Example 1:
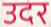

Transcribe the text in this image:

उदर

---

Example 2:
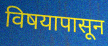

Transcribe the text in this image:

विषयापासून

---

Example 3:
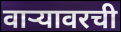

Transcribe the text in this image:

वार्‍यावरची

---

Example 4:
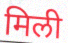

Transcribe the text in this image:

मिली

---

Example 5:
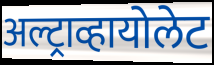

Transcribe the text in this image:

अल्ट्राव्हायोलेट